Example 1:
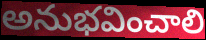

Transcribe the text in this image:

అనుభవించాలి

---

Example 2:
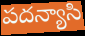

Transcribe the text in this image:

పదన్యాసి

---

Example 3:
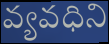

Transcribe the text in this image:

వ్యవధిని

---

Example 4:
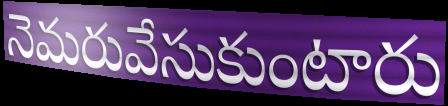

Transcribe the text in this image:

నెమరువేసుకుంటారు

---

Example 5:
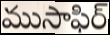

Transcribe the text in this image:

ముసాఫిర్